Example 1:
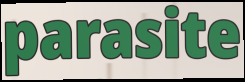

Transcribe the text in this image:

parasite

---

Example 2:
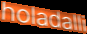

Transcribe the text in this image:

holadalli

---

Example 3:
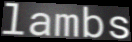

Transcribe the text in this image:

lambs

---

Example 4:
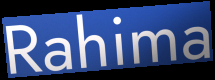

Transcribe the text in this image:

Rahima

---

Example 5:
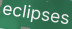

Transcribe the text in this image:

eclipses